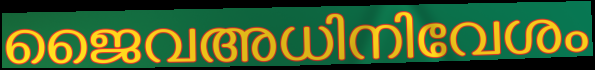
ജൈവഅധിനിവേശം